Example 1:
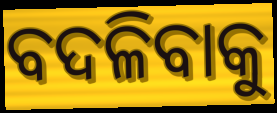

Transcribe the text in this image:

ବଦଳିବାକୁ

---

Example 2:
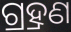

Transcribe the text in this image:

ଗ୍ର୍ରହଣ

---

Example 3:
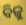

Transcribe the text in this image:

ବିଜୁ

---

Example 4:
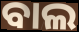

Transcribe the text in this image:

ବାଲ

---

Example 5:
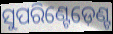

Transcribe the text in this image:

ସୁପରିଣ୍ଟେଡ଼େଣ୍ଟ